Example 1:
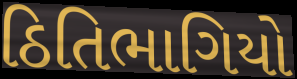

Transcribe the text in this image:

ઠિતિભાગિયો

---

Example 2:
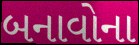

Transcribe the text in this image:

બનાવોના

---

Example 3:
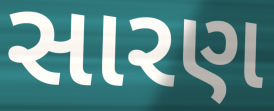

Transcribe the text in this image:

સારણ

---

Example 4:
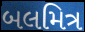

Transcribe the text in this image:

બલમિત્ર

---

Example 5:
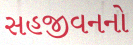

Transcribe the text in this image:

સહજીવનનો